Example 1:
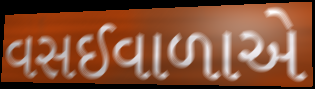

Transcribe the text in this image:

વસઈવાળાએ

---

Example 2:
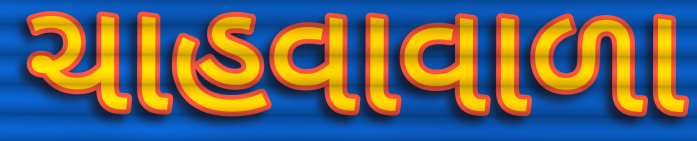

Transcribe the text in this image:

ચાહવાવાળા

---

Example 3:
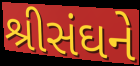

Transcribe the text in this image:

શ્રીસંઘને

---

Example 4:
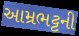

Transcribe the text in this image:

આમ્રભટ્ટની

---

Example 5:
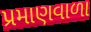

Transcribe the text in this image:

પ્રમાણવાળા